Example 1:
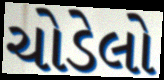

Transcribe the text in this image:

ચોડેલો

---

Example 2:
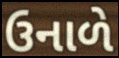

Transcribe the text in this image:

ઉનાળે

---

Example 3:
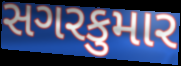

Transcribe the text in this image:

સગરકુમાર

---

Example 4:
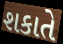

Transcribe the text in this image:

શકાતે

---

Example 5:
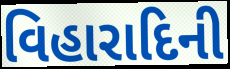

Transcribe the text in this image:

વિહારાદિની